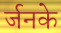
र्जनके